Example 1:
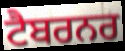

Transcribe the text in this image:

ਟੈਬਰਨਰ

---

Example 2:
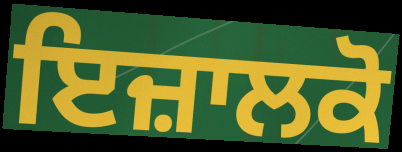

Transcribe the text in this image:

ਇਜ਼ਾਲਕੋ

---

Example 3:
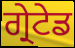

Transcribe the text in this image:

ਗ੍ਰੇਟੇਡ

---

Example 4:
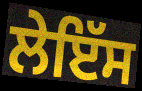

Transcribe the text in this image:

ਲੇਇੱਸ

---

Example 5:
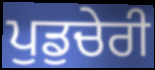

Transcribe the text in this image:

ਪੁਡੁਚੇਰੀ